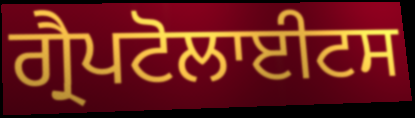
ਗ੍ਰੈਪਟੋਲਾਈਟਸ